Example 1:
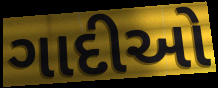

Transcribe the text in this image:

ગાદીઓ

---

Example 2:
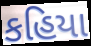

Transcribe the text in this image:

કહિયા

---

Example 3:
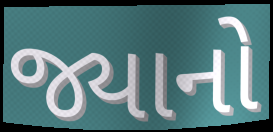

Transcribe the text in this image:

જ્યાનો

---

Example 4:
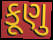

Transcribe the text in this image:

કૂણુ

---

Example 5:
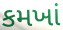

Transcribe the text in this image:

કમખાં